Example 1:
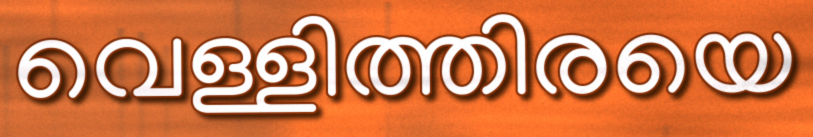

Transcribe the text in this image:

വെള്ളിത്തിരയെ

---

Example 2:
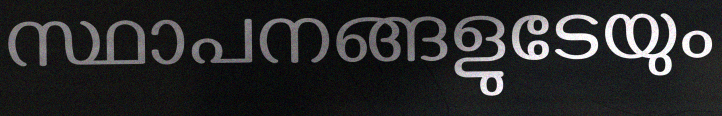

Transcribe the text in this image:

സ്ഥാപനങ്ങളുടേയും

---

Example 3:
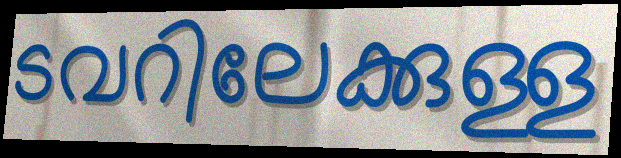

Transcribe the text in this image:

ടവറിലേക്കുള്ള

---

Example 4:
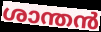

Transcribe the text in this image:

ശാന്തൻ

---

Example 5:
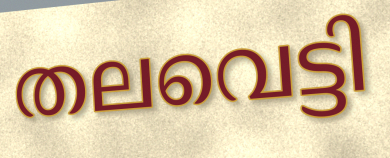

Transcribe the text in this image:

തലവെട്ടി